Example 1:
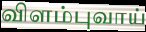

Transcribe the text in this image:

விளம்புவாய்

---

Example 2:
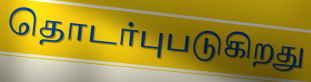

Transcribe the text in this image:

தொடர்புபடுகிறது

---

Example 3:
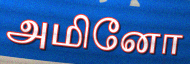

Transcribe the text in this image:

அமினோ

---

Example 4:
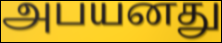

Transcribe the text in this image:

அபயனது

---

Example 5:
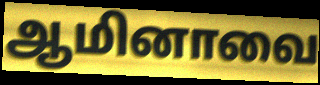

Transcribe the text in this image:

ஆமினாவை